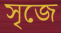
সৃজে